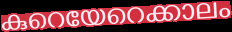
കുറെയേറെക്കാലം